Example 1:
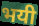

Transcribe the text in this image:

भयी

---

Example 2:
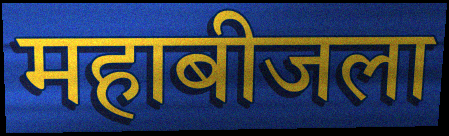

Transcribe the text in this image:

महाबीजला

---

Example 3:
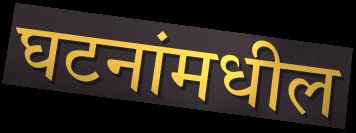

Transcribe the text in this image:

घटनांमधील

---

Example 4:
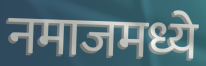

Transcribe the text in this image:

नमाजमध्ये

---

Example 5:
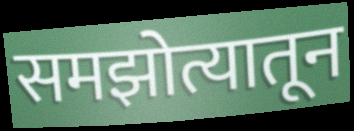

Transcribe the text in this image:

समझोत्यातून